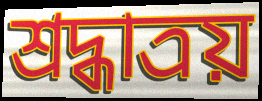
শ্রদ্ধাত্রয়